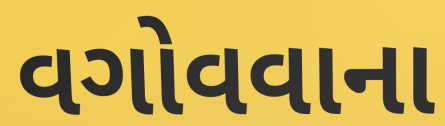
વગોવવાના